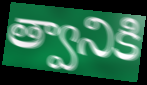
త్వానికి